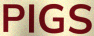
PIGS